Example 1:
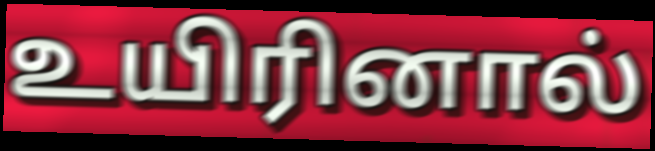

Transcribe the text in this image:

உயிரினால்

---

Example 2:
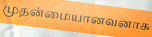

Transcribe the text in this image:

முதன்மையானவனாக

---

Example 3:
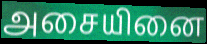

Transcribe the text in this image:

அசையினை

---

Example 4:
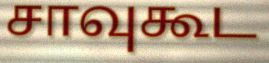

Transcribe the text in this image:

சாவுகூட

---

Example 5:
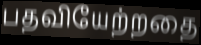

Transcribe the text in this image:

பதவியேற்றதை